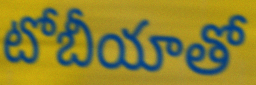
టోబీయాతో